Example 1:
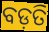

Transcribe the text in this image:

ବଡ଼ତି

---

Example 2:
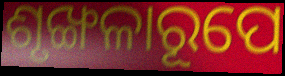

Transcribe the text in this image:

ଶୃଙ୍ଖଳାରୂପେ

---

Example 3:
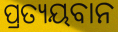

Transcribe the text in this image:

ପ୍ରତ୍ୟୟବାନ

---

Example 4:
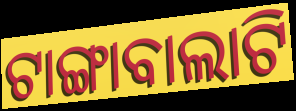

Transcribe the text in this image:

ଟାଙ୍ଗାବାଲାଟି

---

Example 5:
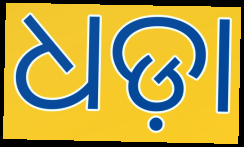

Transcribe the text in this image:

ଧଡ଼ା